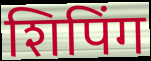
शिपिंग